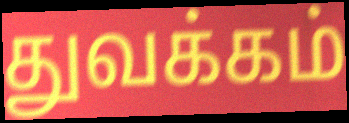
துவக்கம்